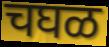
चघळ